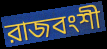
রাজবংশী